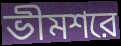
ভীমশরে